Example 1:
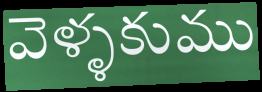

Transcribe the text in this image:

వెళ్ళకుము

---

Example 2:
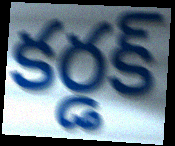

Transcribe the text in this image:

కర్డక్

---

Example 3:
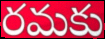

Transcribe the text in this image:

రమకు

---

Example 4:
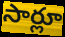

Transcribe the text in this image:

సార్లూ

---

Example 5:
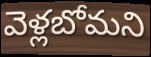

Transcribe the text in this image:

వెళ్లబోమని